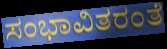
ಸಂಭಾವಿತರಂತೆ